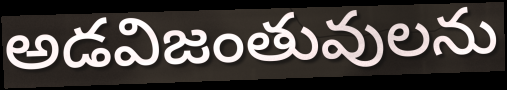
అడవిజంతువులను